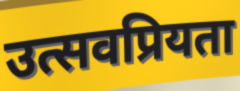
उत्सवप्रियता